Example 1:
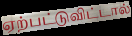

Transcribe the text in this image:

ஏற்பட்டுவிட்டால்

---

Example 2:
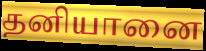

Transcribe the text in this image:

தனியானை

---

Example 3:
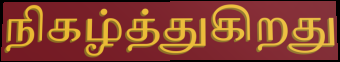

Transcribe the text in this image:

நிகழ்த்துகிறது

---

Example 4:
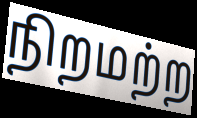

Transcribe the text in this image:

நிறமற்ற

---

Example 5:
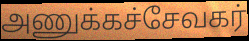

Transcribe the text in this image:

அணுக்கச்சேவகர்